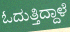
ಓದುತ್ತಿದ್ದಾಳೆ